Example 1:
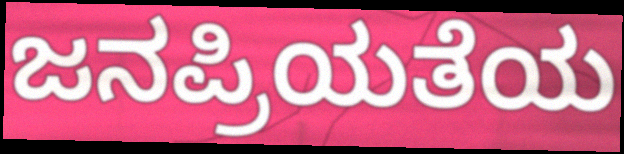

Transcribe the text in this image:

ಜನಪ್ರಿಯತೆಯ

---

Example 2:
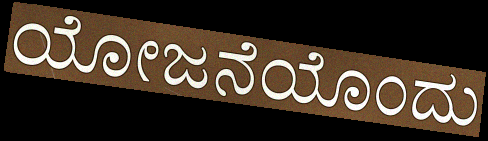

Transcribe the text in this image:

ಯೋಜನೆಯೊಂದು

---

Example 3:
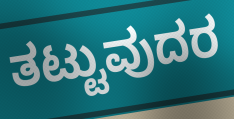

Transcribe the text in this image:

ತಟ್ಟುವುದರ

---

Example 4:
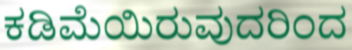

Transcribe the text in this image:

ಕಡಿಮೆಯಿರುವುದರಿಂದ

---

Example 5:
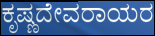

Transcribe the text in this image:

ಕೃಷ್ಣದೇವರಾಯರ